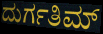
ದುರ್ಗತಿಮ್